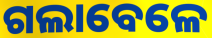
ଗଲାବେଳେ